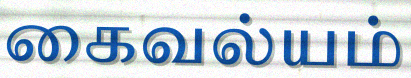
கைவல்யம்